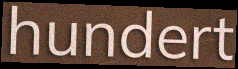
hundert